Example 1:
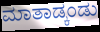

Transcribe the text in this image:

ಮಾತಾಡ್ಕಂಡು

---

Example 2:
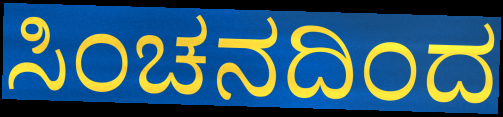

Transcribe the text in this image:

ಸಿಂಚನದಿಂದ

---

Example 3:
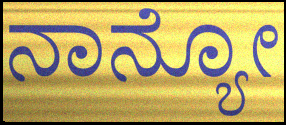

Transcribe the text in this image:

ನಾನ್ಯೋ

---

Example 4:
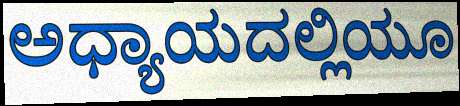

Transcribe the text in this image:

ಅಧ್ಯಾಯದಲ್ಲಿಯೂ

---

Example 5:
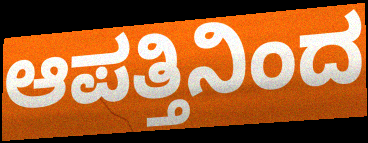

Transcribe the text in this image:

ಆಪತ್ತಿನಿಂದ